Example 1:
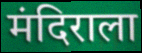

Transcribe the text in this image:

मंदिराला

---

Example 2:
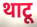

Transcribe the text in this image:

थाटू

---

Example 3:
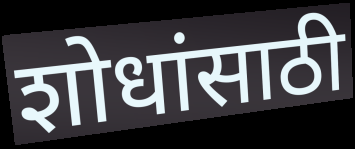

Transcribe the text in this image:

शोधांसाठी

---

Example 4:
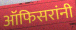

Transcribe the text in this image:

ऑफिसरांनी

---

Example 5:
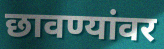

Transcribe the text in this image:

छावण्यांवर